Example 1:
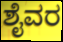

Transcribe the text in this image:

ಶೈವರ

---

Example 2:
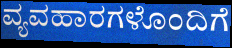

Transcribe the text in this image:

ವ್ಯವಹಾರಗಳೊಂದಿಗೆ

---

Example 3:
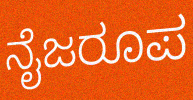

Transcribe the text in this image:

ನೈಜರೂಪ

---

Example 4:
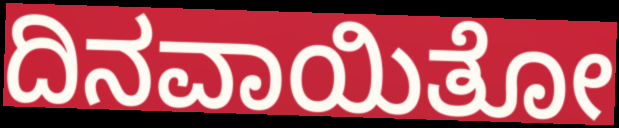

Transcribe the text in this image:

ದಿನವಾಯಿತೋ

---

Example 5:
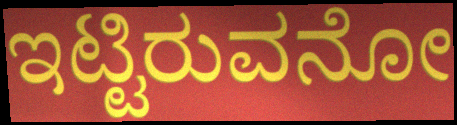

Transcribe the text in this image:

ಇಟ್ಟಿರುವನೋ